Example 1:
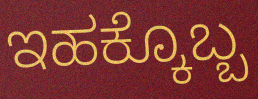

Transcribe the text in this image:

ಇಹಕ್ಕೊಬ್ಬ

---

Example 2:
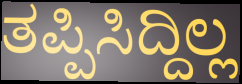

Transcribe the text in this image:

ತಪ್ಪಿಸಿದ್ದಿಲ್ಲ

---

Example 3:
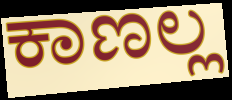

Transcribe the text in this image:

ಕಾಣಲ್ಲ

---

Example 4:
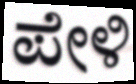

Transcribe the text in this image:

ಪೇಳಿ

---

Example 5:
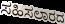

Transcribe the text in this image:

ಸಹಿಸಲಾರದ